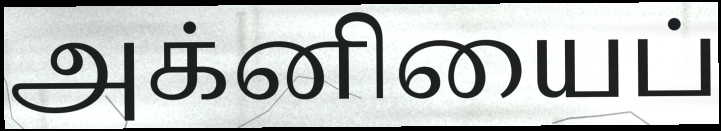
அக்னியைப்